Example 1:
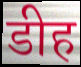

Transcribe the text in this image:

डीह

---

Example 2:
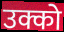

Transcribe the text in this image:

उक्को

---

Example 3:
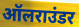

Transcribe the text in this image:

ऑलराउंडर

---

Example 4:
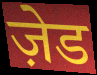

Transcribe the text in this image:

ज़ेड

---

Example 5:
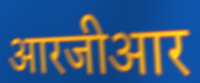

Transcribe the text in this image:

आरजीआर